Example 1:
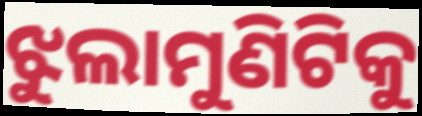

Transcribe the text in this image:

ଝୁଲାମୁଣିଟିକୁ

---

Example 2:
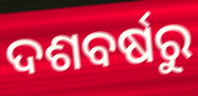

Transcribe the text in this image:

ଦଶବର୍ଷରୁ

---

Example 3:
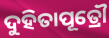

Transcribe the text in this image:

ଦୁହିତାପୂତ୍ରୌ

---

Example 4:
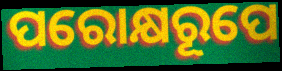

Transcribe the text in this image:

ପରୋକ୍ଷରୂପେ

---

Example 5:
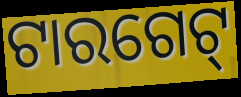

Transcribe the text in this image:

ଟାରଗେଟ୍